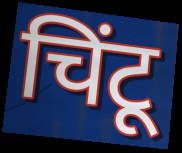
चिंटू